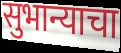
सुभान्याचा